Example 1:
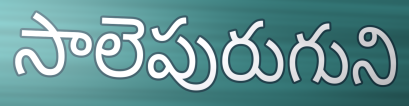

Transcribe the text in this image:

సాలెపురుగుని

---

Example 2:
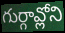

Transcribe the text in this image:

గుర్గావ్లోని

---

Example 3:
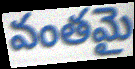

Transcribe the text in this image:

వంతమై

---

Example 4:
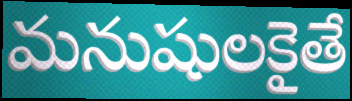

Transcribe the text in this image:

మనుషులకైతే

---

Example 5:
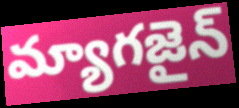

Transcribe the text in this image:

మ్యాగజైన్